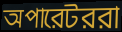
অপারেটররা